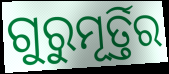
ଗୁରୁମୂର୍ତ୍ତିର